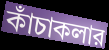
কাঁচাকলার